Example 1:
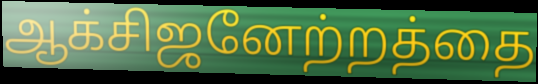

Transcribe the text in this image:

ஆக்சிஜனேற்றத்தை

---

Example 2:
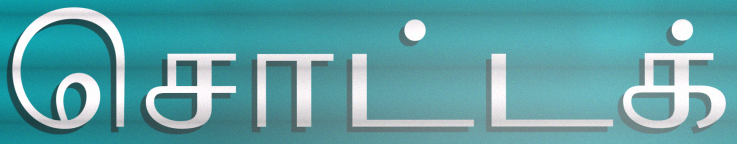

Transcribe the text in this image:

சொட்டக்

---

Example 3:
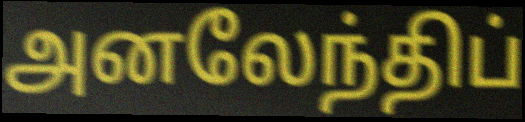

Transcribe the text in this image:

அனலேந்திப்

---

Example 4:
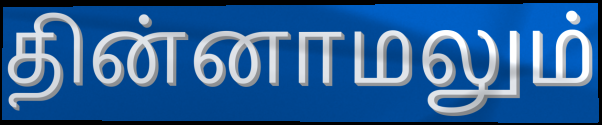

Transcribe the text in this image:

தின்னாமலும்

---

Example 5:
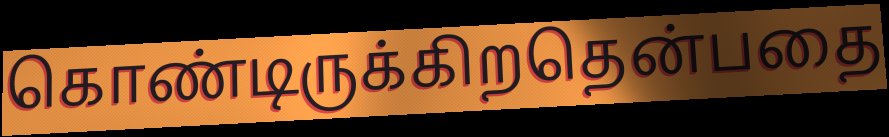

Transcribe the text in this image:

கொண்டிருக்கிறதென்பதை